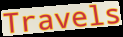
Travels